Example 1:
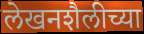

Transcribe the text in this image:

लेखनशैलीच्या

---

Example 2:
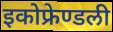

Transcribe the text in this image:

इकोफ्रेण्डली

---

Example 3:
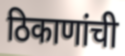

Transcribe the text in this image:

ठिकाणांची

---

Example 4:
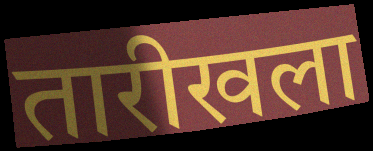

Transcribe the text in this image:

तारीखला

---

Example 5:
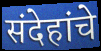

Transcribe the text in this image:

संदेहांचे